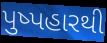
પુષ્પહારથી